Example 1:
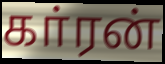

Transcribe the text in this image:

கர்ரன்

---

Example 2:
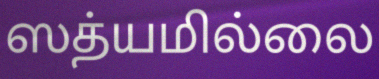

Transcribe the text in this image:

ஸத்யமில்லை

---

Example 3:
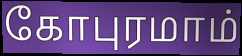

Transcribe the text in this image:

கோபுரமாம்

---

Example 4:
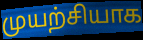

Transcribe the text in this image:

முயற்சியாக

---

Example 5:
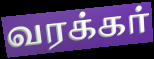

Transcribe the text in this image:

வரக்கர்